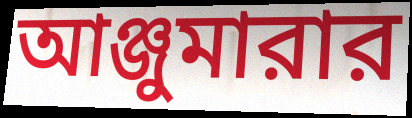
আঞ্জুমারার